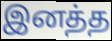
இனத்த